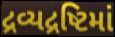
દ્રવ્યદ્રષ્ટિમાં